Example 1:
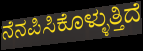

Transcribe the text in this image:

ನೆನಪಿಸಿಕೊಳ್ಳುತ್ತಿದೆ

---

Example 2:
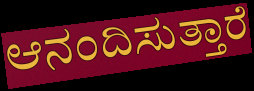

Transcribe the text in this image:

ಆನಂದಿಸುತ್ತಾರೆ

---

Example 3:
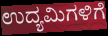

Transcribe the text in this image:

ಉದ್ಯಮಿಗಳಿಗೆ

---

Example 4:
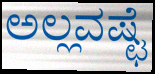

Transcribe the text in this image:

ಅಲ್ಲವಷ್ಟೆ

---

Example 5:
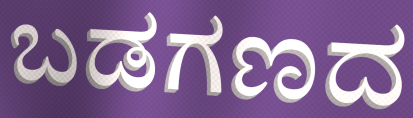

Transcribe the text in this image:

ಬಡಗಣದ